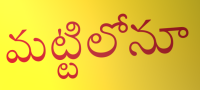
మట్టిలోనూ